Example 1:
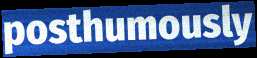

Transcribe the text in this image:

posthumously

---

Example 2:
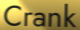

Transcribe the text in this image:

Crank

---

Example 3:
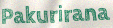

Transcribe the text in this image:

Pakurirana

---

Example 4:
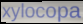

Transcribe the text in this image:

xylocopa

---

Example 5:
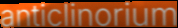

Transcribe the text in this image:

anticlinorium